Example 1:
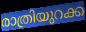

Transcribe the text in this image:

രാത്രിയുറക്ക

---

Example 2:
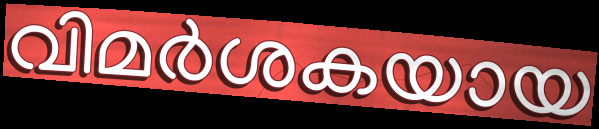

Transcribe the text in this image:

വിമർശകയായ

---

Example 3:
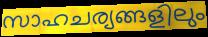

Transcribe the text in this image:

സാഹചര്യങ്ങളിലും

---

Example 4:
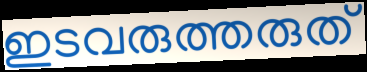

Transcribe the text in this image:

ഇടവരുത്തരുത്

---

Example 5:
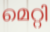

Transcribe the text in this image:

മെറ്റി